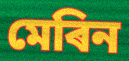
মেৰিন